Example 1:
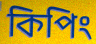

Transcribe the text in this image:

কিপিং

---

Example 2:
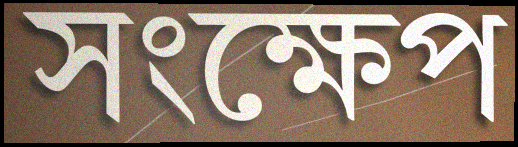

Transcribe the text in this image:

সংক্ষেপ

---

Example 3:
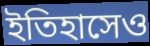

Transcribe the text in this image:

ইতিহাসেও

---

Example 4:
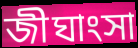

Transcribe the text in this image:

জীঘাংসা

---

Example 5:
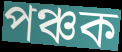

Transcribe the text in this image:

পঞ্চক